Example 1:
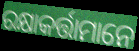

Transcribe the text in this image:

ରକ୍ଷାକର୍ତ୍ତାମାନେ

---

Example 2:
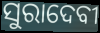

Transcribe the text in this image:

ସୁରାଦେବୀ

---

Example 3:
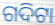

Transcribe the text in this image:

ଗଦିଟା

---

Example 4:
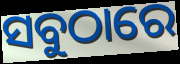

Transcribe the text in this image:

ସବୁଠାରେ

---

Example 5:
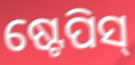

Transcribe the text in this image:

ଷ୍ଟେପିସ୍